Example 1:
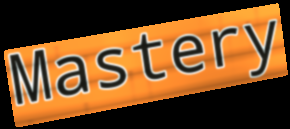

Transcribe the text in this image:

Mastery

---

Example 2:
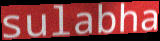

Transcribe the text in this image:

sulabha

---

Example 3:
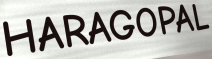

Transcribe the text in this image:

HARAGOPAL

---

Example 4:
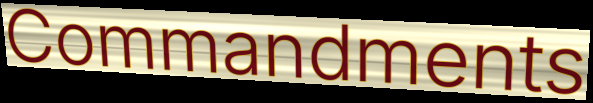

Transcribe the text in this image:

Commandments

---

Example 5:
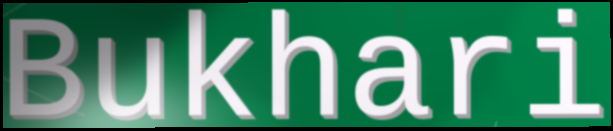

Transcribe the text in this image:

Bukhari